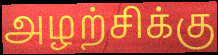
அழற்சிக்கு